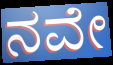
ನವೇ